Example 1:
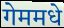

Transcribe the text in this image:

गेममधे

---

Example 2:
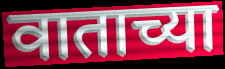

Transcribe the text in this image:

वाताच्या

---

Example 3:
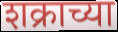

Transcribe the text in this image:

शक्राच्या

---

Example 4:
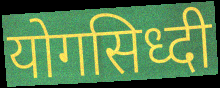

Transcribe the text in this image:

योगसिध्दी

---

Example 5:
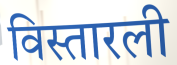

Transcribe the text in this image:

विस्तारली